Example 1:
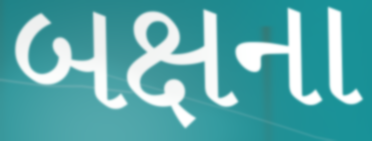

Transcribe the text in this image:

બક્ષના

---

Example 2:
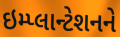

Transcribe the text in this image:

ઇમ્પ્લાન્ટેશનને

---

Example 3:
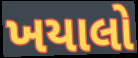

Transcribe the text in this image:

ખયાલો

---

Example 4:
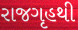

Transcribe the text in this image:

રાજગૃહથી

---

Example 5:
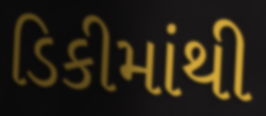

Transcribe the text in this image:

ડિકીમાંથી